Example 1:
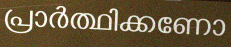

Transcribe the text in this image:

പ്രാർത്ഥിക്കണോ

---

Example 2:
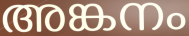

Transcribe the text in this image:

അങ്കനം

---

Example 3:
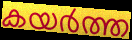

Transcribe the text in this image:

കയർത്ത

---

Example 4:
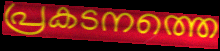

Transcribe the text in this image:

പ്രകടനത്തെ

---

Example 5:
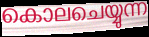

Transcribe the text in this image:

കൊലചെയ്യുന്ന